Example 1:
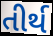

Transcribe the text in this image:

તીર્થ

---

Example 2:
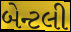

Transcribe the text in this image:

બેન્ટલી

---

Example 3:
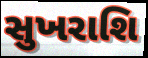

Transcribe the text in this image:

સુખરાશિ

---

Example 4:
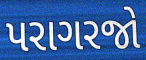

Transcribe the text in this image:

પરાગરજો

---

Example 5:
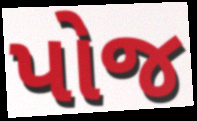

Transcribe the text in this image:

પોજ